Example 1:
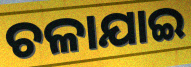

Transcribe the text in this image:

ଚଳାଯାଇ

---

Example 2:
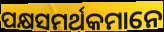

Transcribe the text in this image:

ପକ୍ଷସମର୍ଥକମାନେ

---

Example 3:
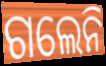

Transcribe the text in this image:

ଗଲେନି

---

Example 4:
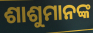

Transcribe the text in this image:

ଶାଶୁମାନଙ୍କ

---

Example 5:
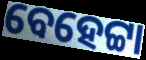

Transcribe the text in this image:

ବେହେଟ୍ଟା